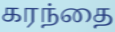
கரந்தை